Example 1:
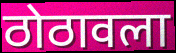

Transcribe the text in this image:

ठोठावला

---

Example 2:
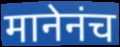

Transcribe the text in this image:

मानेनंच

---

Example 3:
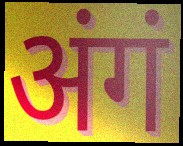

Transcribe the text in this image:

अंगं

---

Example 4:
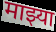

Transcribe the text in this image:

माझ्या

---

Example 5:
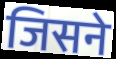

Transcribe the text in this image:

जिसने